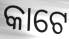
କାଟେ